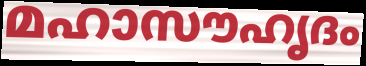
മഹാസൗഹൃദം